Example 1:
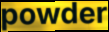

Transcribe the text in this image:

powder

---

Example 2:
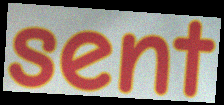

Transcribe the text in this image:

sent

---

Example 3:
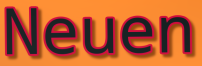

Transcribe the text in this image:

Neuen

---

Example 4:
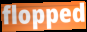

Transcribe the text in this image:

flopped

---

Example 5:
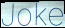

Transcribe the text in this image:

Joke